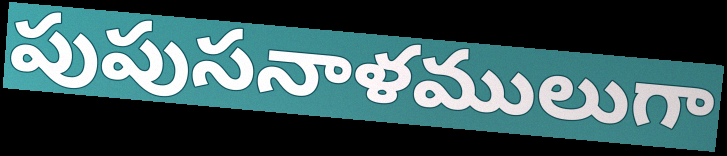
పుపుసనాళములుగా